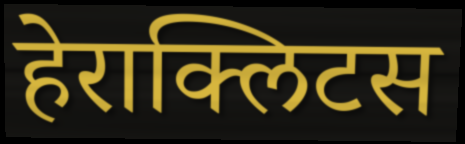
हेराक्लिटस